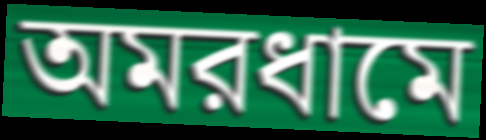
অমরধামে